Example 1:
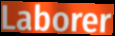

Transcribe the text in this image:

Laborer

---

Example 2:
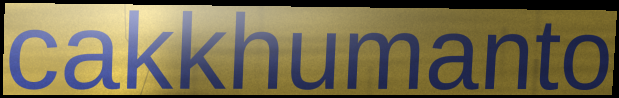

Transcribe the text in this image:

cakkhumanto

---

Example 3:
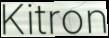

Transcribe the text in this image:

Kitron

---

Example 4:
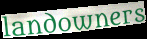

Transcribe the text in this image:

landowners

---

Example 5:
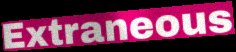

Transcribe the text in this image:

Extraneous